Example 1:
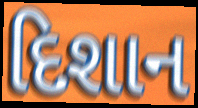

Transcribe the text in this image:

દિશાન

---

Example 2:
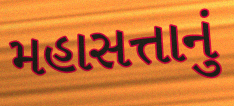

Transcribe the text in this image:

મહાસત્તાનું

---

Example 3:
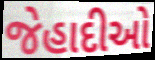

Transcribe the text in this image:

જેહાદીઓ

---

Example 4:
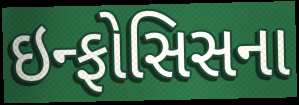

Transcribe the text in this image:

ઇન્ફોસિસના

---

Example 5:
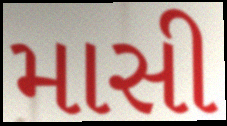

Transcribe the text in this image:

માસી